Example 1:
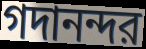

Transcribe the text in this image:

গদানন্দর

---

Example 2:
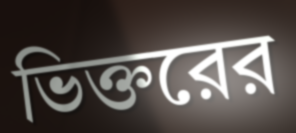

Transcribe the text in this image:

ভিক্তরের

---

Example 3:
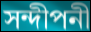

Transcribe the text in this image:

সন্দীপনী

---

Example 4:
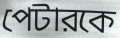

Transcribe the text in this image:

পেটারকে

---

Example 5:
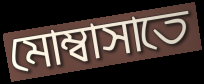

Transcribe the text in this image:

মোম্বাসাতে